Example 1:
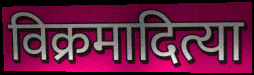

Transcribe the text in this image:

विक्रमादित्या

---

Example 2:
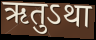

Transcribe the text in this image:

ऋतुऽथा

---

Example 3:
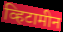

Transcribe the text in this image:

व्हिटामीन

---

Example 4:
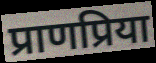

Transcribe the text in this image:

प्राणप्रिया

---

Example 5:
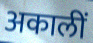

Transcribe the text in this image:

अकालीं